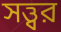
সত্ত্বর